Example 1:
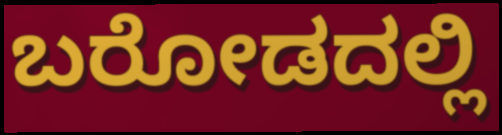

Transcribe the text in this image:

ಬರೋಡದಲ್ಲಿ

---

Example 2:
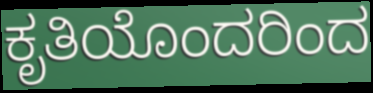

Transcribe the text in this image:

ಕೃತಿಯೊಂದರಿಂದ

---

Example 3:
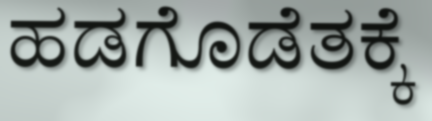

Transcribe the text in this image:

ಹಡಗೊಡೆತಕ್ಕೆ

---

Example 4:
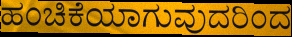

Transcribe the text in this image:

ಹಂಚಿಕೆಯಾಗುವುದರಿಂದ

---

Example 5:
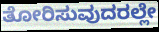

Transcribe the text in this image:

ತೋರಿಸುವುದರಲ್ಲೇ